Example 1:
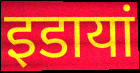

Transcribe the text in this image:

इडायां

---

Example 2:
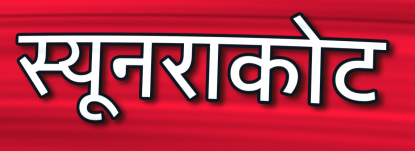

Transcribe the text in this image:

स्यूनराकोट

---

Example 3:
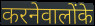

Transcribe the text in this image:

करनेवालोंके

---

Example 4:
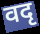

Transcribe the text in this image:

वदृ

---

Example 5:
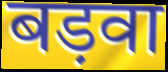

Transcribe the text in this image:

बड़वा